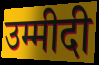
उम्मीदी